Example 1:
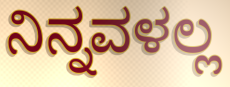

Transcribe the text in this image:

ನಿನ್ನವಳಲ್ಲ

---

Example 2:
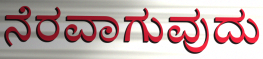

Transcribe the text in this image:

ನೆರವಾಗುವುದು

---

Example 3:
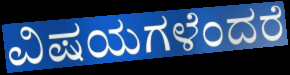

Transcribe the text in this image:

ವಿಷಯಗಳೆಂದರೆ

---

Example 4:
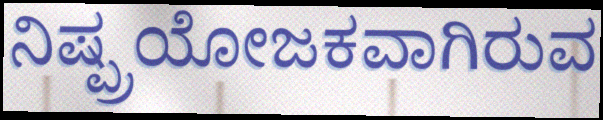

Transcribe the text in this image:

ನಿಷ್ಪ್ರಯೋಜಕವಾಗಿರುವ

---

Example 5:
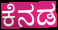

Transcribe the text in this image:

ಕೆನಡ